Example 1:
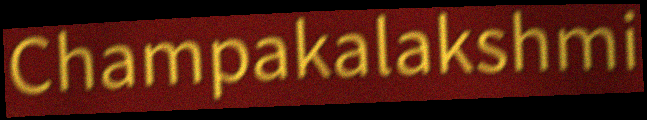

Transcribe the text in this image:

Champakalakshmi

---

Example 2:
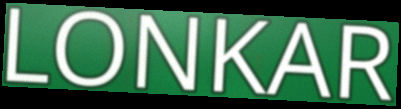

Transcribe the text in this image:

LONKAR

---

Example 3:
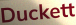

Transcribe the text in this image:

Duckett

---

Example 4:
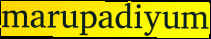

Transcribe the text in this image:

marupadiyum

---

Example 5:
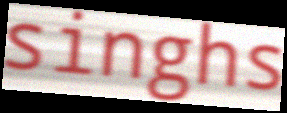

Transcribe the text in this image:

singhs